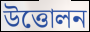
উত্তোলন